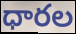
ధారల